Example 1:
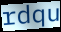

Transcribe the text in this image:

rdqu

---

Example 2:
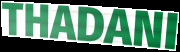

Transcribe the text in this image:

THADANI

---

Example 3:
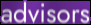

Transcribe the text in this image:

advisors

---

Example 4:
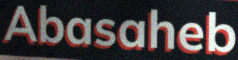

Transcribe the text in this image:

Abasaheb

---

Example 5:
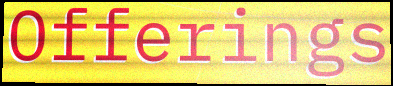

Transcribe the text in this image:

Offerings